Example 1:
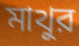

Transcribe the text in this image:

মাথুর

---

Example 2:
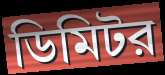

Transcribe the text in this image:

ডিমিটর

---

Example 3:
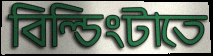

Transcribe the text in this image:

বিল্ডিংটাতে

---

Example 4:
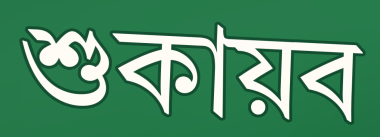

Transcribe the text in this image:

শুকায়ব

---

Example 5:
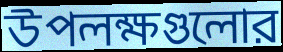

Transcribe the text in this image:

উপলক্ষগুলোর